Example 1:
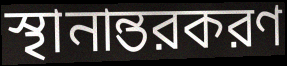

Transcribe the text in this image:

স্থানান্তরকরণ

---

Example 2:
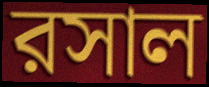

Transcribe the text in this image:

রসাল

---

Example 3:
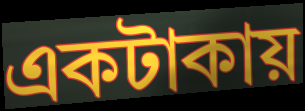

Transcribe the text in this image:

একটাকায়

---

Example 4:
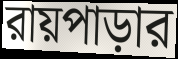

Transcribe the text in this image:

রায়পাড়ার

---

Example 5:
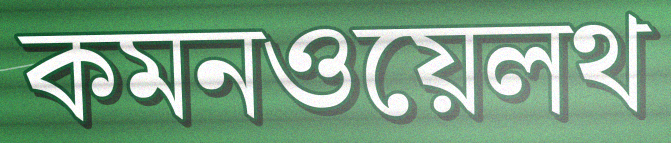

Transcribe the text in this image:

কমনওয়েলথ